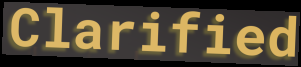
Clarified